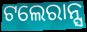
ଟଲେରାନ୍ସ